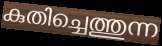
കുതിച്ചെത്തുന്ന